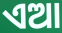
ଏଆ